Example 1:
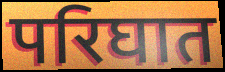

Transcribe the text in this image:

परिघात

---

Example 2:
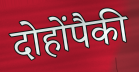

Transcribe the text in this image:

दोहोंपैकी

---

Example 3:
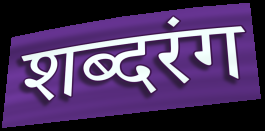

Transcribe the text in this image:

शब्दरंग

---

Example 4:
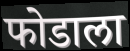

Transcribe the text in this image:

फोडाला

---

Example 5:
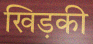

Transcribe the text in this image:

खिड़की